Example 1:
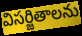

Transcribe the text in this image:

విసర్జితాలను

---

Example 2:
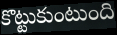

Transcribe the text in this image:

కొట్టుకుంటుంది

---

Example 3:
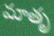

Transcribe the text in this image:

మాతృ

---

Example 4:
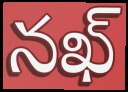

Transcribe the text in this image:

నఖ్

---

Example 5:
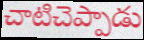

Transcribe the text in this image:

చాటిచెప్పాడు